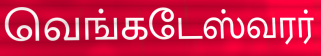
வெங்கடேஸ்வரர்